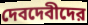
দেবদেবীদের